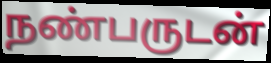
நண்பருடன்